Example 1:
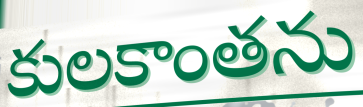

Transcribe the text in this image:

కులకాంతను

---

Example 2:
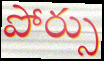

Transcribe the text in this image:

పోర్సు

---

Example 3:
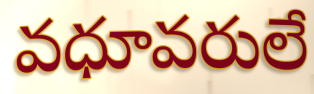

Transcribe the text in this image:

వధూవరులే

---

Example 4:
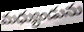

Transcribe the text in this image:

మధ్యుండును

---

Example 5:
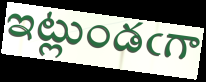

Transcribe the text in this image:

ఇట్లుండఁగా